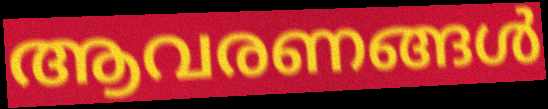
ആവരണങ്ങൾ